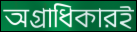
অগ্রাধিকারই